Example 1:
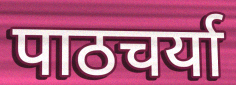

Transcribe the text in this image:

पाठचर्या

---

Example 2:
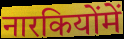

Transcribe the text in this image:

नारकियोंमें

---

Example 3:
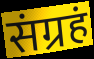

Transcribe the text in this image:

संग्रहं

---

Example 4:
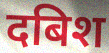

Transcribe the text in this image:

दबिश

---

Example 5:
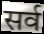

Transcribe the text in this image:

सर्व